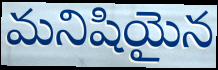
మనిషియైన